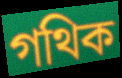
গথিক